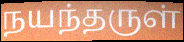
நயந்தருள்